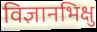
विज्ञानभिक्षु